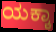
ಯಕ್ಕಾ